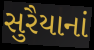
સુરૈયાનાં